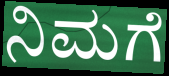
ನಿಮಗೆ